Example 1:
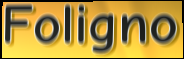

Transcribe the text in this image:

Foligno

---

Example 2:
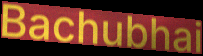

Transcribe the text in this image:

Bachubhai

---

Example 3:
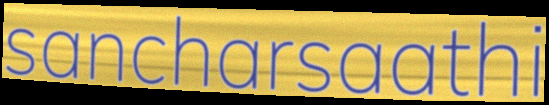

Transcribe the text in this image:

sancharsaathi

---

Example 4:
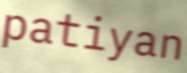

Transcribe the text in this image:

patiyan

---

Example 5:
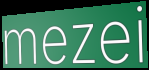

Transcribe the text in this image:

mezei